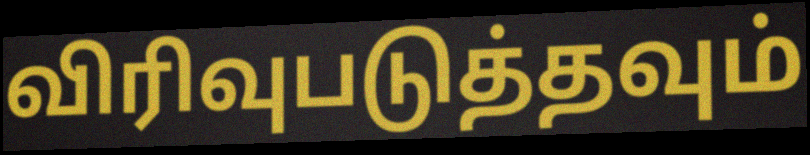
விரிவுபடுத்தவும்